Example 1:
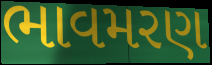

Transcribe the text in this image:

ભાવમરણ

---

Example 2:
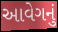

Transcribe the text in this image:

આવેગનું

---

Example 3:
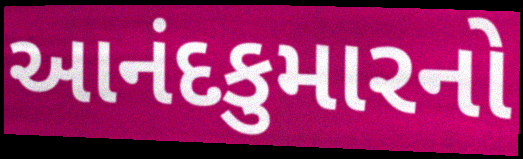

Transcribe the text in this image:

આનંદકુમારનો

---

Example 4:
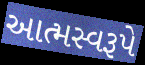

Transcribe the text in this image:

આત્મસ્વરૂપે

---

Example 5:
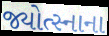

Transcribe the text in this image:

જ્યોત્સ્નાના